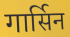
गार्सिन